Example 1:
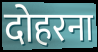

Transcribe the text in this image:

दोहरना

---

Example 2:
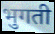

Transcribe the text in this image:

भुगती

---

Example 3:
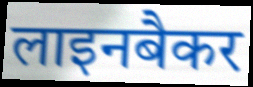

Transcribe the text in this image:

लाइनबैकर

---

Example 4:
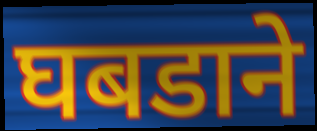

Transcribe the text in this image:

घबडाने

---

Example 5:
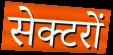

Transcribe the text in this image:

सेक्टरों